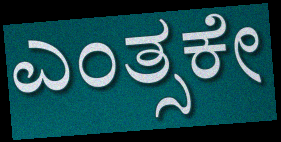
ಎಂತ್ಸಕೇ